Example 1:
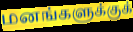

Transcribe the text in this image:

மனங்களுக்குக்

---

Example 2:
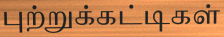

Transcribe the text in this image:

புற்றுக்கட்டிகள்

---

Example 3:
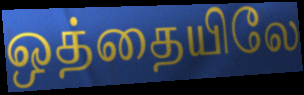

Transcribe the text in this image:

ஒத்தையிலே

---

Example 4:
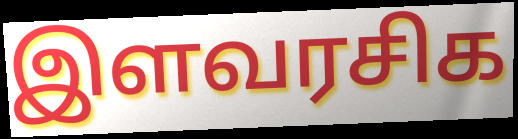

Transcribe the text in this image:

இளவரசிக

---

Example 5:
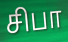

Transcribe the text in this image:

சிபா